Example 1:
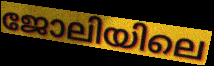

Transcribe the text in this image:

ജോലിയിലെ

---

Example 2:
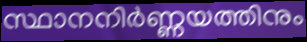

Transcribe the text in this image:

സ്ഥാനനിർണ്ണയത്തിനും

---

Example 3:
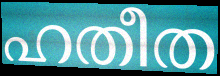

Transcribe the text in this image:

ഹതീത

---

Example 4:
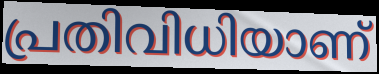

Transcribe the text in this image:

പ്രതിവിധിയാണ്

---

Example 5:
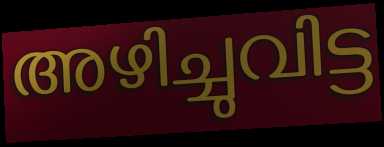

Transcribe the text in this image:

അഴിച്ചുവിട്ട